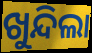
ଖୁନ୍ଦିଲା